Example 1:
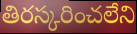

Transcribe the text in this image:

తిరస్కరించలేని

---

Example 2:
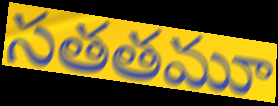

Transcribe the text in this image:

సతతమూ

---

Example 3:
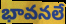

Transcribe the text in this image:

భావనలే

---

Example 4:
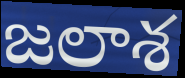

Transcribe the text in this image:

జలాశ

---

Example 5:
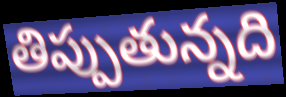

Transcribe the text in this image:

తిప్పుతున్నది